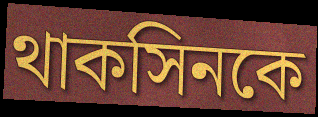
থাকসিনকে